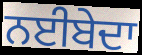
ਨਈਬੇਦਾ